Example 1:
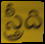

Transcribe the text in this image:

స్త్రీది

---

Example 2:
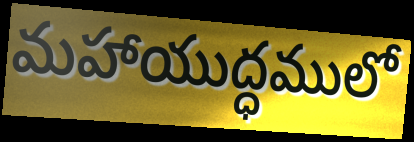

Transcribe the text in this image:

మహాయుద్ధములో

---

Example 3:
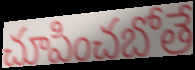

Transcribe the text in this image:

చూపించబోతే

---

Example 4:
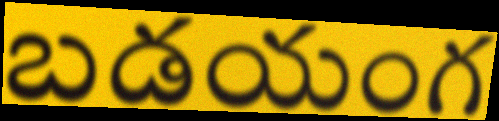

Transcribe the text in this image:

బడయంగ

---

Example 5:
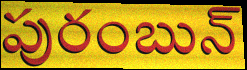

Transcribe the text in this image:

పురంబున్